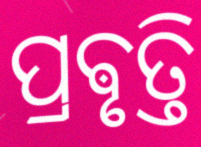
ପ୍ରଵୃତ୍ତି